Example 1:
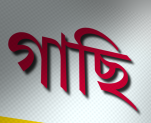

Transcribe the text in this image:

গাছি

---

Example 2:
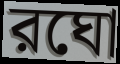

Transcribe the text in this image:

রঘো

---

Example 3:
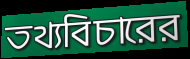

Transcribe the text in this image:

তথ্যবিচারের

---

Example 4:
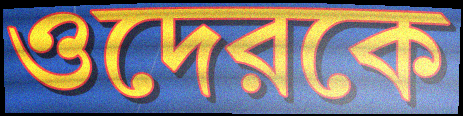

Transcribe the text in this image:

ওদেরকে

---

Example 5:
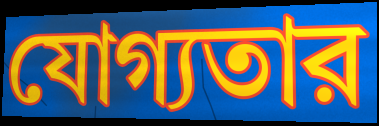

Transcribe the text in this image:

যোগ্যতার